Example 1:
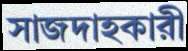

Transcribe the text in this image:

সাজদাহকারী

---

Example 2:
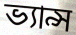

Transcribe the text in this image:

ভ্যান্স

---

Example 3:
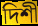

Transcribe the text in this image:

দিশী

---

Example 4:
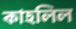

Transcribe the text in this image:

কাহলিল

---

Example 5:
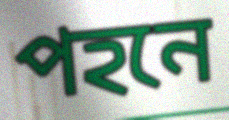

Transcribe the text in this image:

পহনে